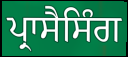
ਪ੍ਰਾਸੈਸਿੰਗ